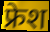
फ्रेश